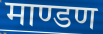
माण्डण